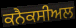
ਕਨੈਕਸੀਅਲ